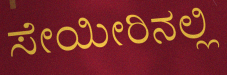
ಸೇಯೀರಿನಲ್ಲಿ